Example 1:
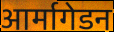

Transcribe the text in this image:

आर्मागेडन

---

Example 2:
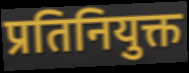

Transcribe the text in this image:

प्रतिनियुक्त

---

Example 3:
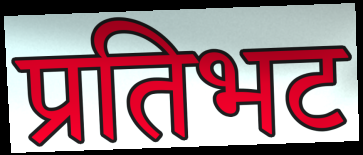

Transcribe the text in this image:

प्रतिभट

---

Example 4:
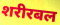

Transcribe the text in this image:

शरीरबल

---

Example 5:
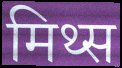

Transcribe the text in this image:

मिथ्स